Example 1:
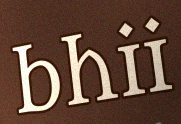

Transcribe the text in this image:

bhii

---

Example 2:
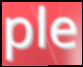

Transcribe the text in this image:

ple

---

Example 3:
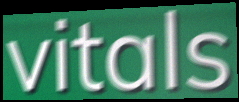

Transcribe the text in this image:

vitals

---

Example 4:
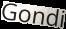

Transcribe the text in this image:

Gondi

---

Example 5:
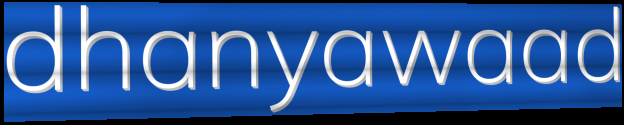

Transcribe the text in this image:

dhanyawaad